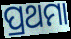
ପ୍ରଥମା